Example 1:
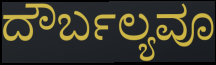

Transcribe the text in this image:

ದೌರ್ಬಲ್ಯವೂ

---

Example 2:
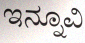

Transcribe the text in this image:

ಇನ್ನೂವಿ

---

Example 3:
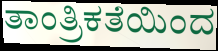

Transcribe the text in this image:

ತಾಂತ್ರಿಕತೆಯಿಂದ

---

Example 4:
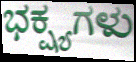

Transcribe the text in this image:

ಭಕ್ಷ್ಯಗಳು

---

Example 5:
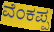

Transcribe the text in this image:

ವೆಂಕಪ್ಪ